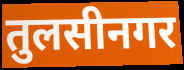
तुलसीनगर